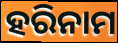
ହରିନାମ